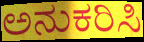
ಅನುಕರಿಸಿ